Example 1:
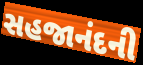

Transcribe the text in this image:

સહજાનંદની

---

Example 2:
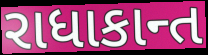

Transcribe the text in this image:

રાધાકાન્ત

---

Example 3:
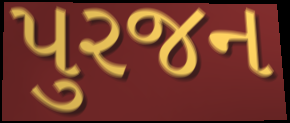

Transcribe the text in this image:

પુરજન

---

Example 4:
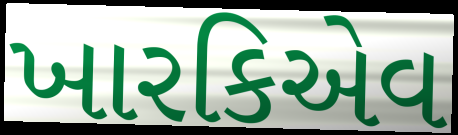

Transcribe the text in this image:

ખારકિએવ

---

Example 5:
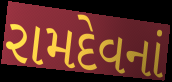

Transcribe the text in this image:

રામદેવનાં